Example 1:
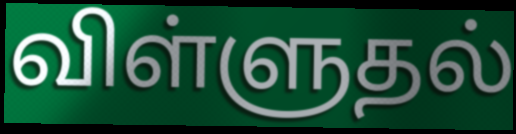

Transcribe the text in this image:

விள்ளுதல்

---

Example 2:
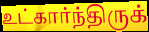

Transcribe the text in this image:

உட்கார்ந்திருக்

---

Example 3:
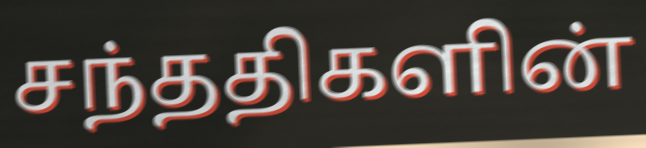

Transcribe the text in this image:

சந்ததிகளின்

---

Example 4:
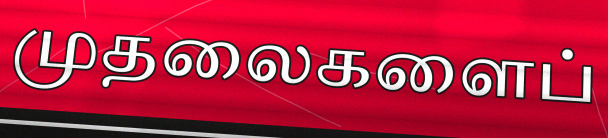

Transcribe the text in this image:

முதலைகளைப்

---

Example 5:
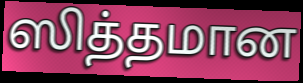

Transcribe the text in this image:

ஸித்தமான